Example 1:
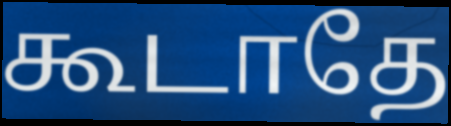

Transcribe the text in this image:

கூடாதே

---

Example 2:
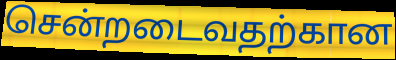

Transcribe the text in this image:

சென்றடைவதற்கான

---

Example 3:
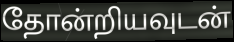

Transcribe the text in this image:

தோன்றியவுடன்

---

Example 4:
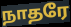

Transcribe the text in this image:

நாதரே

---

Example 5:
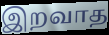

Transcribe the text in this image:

இறவாத